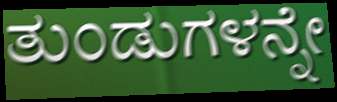
ತುಂಡುಗಳನ್ನೇ